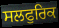
ਸਲਫੁਰਿਕ